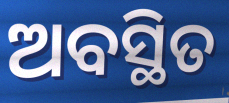
ଅବସ୍ଥିତ